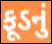
ફૂડનું